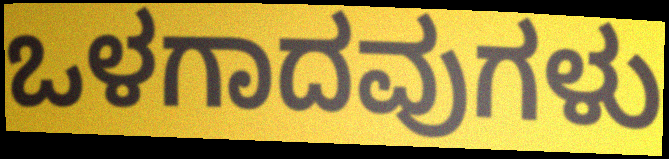
ಒಳಗಾದವುಗಳು